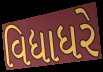
વિદ્યાધરે